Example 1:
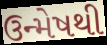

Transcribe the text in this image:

ઉન્મેષથી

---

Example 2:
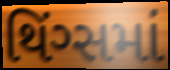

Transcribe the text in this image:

થિંગ્સમાં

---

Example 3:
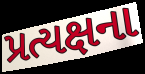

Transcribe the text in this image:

પ્રત્યક્ષના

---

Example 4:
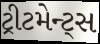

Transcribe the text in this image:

ટ્રીટમેન્ટ્સ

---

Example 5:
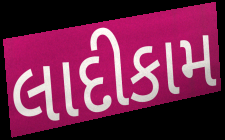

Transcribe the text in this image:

લાદીકામ